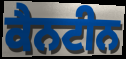
ਕੈਨਟੀਨ